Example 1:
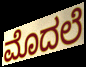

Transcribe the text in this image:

ಮೊದಲೆ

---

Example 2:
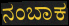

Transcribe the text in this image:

ನಂಬಾಕ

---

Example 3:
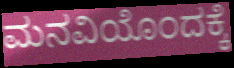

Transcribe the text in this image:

ಮನವಿಯೊಂದಕ್ಕೆ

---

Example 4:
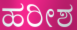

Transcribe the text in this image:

ಹರೀಶ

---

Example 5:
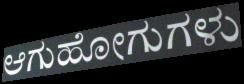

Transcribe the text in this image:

ಆಗುಹೋಗುಗಳು